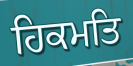
ਹਿਕਮਤਿ